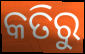
କତିରୁ